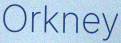
Orkney